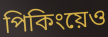
পিকিংয়েও